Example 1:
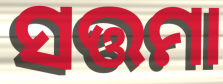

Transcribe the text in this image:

ସତ୍ତମା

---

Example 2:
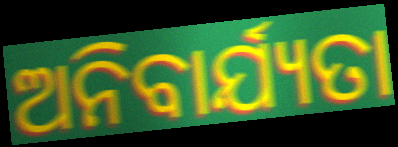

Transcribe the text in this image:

ଅନିବାର୍ଯ୍ୟତା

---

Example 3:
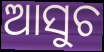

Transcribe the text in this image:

ଆସୁଚ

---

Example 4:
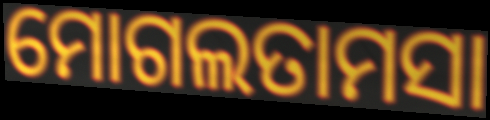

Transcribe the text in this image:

ମୋଗଲତାମସା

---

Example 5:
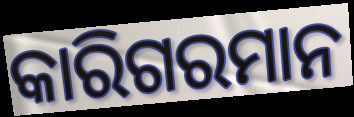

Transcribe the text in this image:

କାରିଗରମାନ